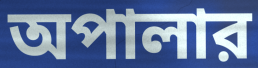
অপালার